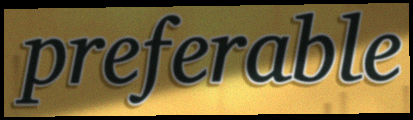
preferable